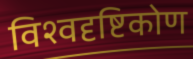
विश्वदृष्टिकोण